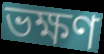
ভক্ষণ